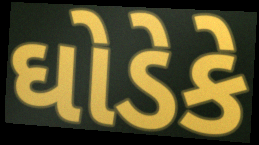
ઘોડેકે